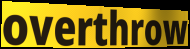
overthrow